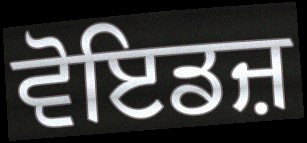
ਵੋਇਡਜ਼